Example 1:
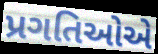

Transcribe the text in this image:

પ્રગતિઓએ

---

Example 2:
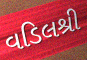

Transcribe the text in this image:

વડિલશ્રી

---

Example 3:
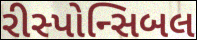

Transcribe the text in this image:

રીસ્પોન્સિબલ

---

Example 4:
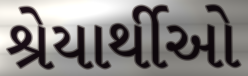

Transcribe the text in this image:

શ્રેયાર્થીઓ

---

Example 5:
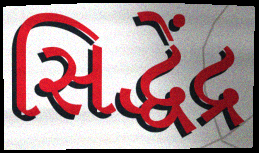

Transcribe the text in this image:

સિદ્ધેંદ્ર